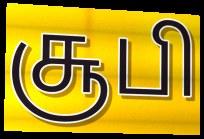
சூபி